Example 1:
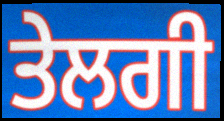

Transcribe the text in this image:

ਤੇਲਗੀ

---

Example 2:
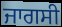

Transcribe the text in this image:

ਜਾਗਸੀ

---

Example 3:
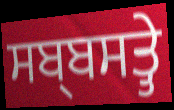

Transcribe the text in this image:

ਸਬ੍ਬਸਤ੍ਤੇ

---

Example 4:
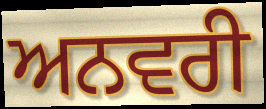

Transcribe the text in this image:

ਅਨਵਰੀ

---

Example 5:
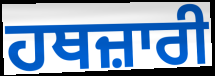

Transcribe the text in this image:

ਹਥਜ਼ਾਰੀ